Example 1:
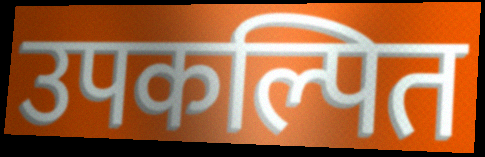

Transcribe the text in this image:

उपकल्पित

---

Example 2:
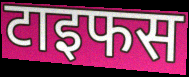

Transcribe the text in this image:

टाइफस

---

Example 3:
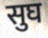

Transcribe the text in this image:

सुघ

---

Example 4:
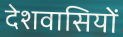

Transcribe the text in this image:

देशवासियों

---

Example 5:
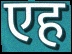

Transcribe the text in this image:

एह